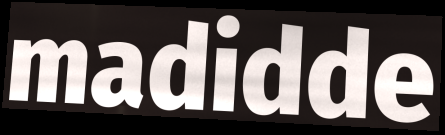
madidde